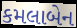
કમલાબેન